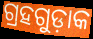
ଗ୍ରହଗୁଡ଼ାକ